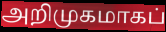
அறிமுகமாகப்